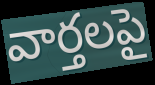
వార్తలపై